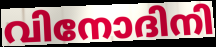
വിനോദിനി